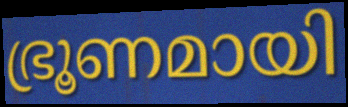
ഭ്രൂണമായി